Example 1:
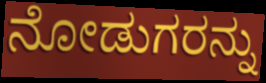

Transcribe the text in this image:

ನೋಡುಗರನ್ನು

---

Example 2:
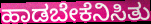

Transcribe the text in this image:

ಹಾಡಬೇಕೆನಿಸಿತು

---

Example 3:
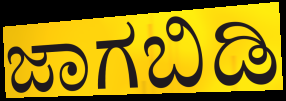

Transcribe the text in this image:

ಜಾಗಬಿಡಿ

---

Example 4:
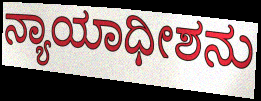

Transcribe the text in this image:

ನ್ಯಾಯಾಧೀಶನು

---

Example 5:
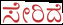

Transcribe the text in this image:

ಸೇರಿದೆ